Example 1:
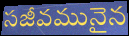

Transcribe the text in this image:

సజీవమునైన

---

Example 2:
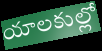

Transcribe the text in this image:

యాలకుల్లో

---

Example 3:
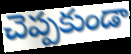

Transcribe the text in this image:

చెప్పకుండా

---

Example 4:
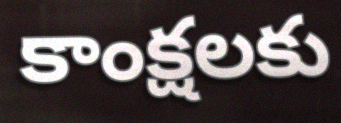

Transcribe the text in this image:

కాంక్షలకు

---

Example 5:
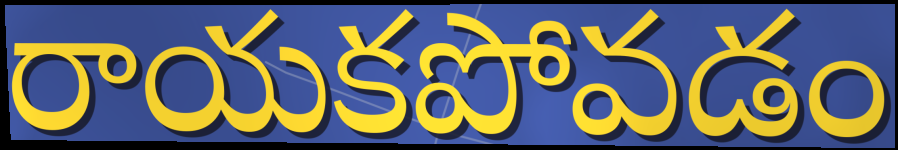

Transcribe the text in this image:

రాయకపోవడం